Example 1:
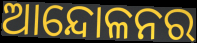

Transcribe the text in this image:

ଆନ୍ଦୋଳନର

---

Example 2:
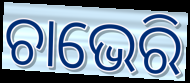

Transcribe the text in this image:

ଚାଭେରି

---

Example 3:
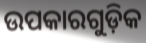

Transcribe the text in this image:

ଉପକାରଗୁଡ଼ିକ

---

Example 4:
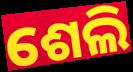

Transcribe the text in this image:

ଶେଲି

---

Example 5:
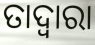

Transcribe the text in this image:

ତାଦ୍ବାରା